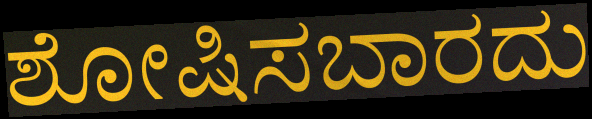
ಶೋಷಿಸಬಾರದು